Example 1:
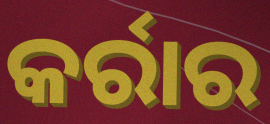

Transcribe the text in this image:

କର୍ରାର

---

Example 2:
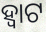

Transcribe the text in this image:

ହ୍ଵାଟ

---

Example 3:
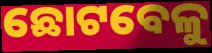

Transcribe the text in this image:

ଛୋଟବେଳୁ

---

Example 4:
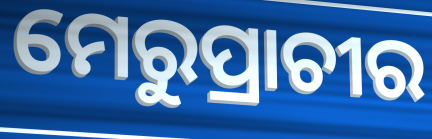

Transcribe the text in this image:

ମେରୁପ୍ରାଚୀର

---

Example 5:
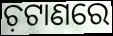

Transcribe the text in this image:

ଚ଼ଟାଣରେ